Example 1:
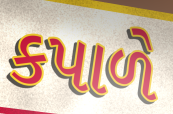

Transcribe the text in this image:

કપાળે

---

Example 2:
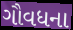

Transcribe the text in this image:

ગૌવધના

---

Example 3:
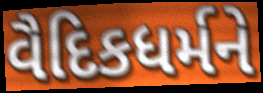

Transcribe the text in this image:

વૈદિકધર્મને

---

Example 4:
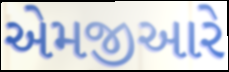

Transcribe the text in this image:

એમજીઆરે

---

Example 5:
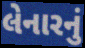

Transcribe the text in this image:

લેનારનું